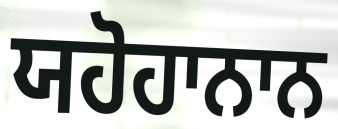
ਯਹੋਹਾਨਾਨ